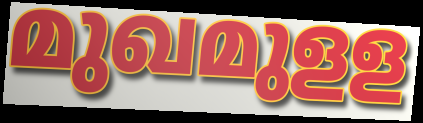
മുഖമുളള